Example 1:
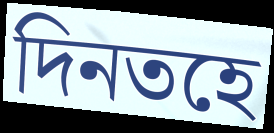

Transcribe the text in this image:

দিনতহে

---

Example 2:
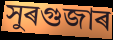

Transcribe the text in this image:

সুৰগুজাৰ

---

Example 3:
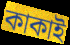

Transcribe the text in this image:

কাকাই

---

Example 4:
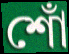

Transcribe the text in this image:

শোঁ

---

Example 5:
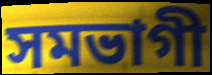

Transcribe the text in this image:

সমভাগী